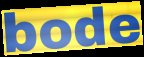
bode